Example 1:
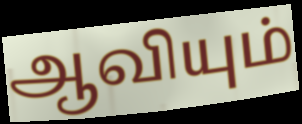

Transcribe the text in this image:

ஆவியும்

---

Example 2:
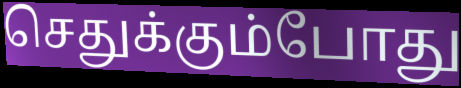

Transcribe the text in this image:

செதுக்கும்போது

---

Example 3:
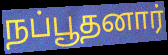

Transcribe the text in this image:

நப்பூதனார்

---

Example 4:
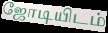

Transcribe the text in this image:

ஜோடியிடம்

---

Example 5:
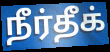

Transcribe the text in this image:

நீர்தீக்